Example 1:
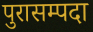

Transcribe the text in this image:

पुरासम्पदा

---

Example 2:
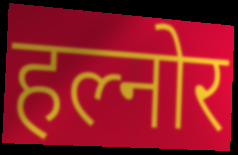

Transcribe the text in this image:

हल्नोर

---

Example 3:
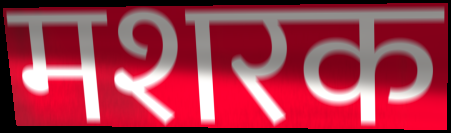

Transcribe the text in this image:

मशरक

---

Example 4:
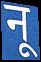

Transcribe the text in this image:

नू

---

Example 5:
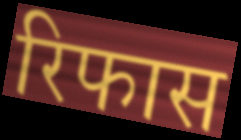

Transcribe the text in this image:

रिफास